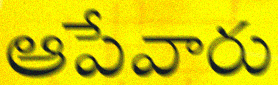
ఆపేవారు